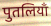
पुतलियाँ